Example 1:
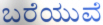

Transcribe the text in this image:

ಬರೆಯುವೆ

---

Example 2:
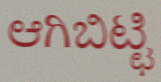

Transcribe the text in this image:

ಆಗಿಬಿಟ್ಟಿ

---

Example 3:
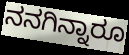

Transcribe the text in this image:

ನನಗಿನ್ನಾರೂ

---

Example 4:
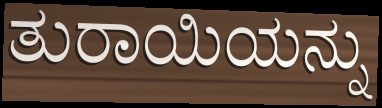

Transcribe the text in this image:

ತುರಾಯಿಯನ್ನು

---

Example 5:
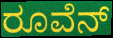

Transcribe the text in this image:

ರೂವೆನ್